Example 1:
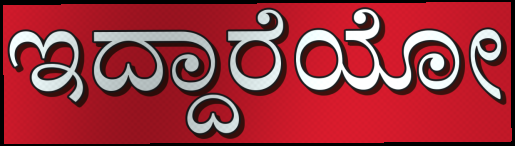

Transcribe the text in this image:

ಇದ್ದಾರೆಯೋ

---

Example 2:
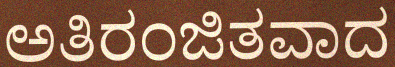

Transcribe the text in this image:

ಅತಿರಂಜಿತವಾದ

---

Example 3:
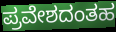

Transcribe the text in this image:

ಪ್ರವೇಶದಂತಹ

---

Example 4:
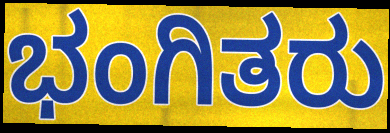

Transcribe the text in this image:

ಭಂಗಿತರು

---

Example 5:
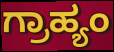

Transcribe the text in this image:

ಗ್ರಾಹ್ಯಂ